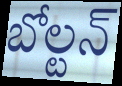
బోల్టన్